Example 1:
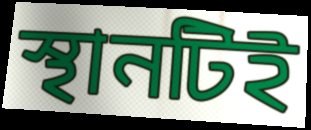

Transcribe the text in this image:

স্থানটিই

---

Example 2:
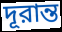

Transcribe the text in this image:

দূরান্ত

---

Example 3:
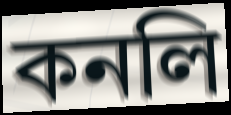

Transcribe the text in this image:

কনলি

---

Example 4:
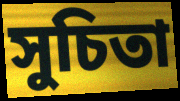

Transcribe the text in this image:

সুচিতা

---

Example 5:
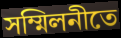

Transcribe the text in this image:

সম্মিলনীতে